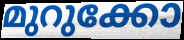
മുറുക്കോ